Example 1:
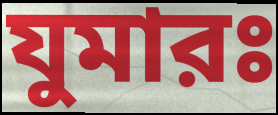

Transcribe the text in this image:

যুমারঃ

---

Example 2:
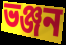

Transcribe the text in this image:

ভঞ্জন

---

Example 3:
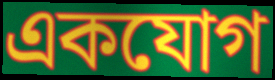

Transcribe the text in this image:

একযোগ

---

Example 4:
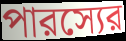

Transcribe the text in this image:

পারস্যের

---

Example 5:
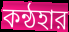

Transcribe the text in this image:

কন্ঠহার